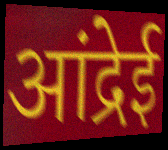
आंद्रेई